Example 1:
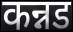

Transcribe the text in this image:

कन्नड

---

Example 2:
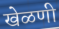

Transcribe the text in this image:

खेळणी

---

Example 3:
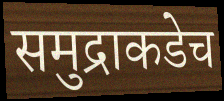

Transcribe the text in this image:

समुद्राकडेच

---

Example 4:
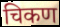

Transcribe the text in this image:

चिकण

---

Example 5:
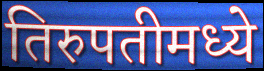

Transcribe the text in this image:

तिरुपतीमध्ये